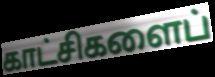
காட்சிகளைப்